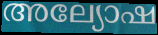
അല്യോഷ